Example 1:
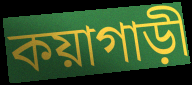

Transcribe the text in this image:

কয়াগাড়ী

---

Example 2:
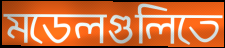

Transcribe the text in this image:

মডেলগুলিতে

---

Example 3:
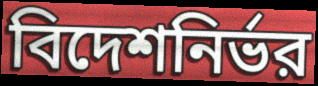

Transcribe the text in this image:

বিদেশনির্ভর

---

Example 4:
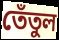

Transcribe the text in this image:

তেঁতুল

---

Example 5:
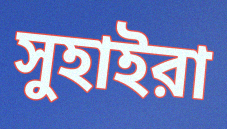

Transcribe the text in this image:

সুহাইরা